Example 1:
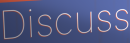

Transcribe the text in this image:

Discuss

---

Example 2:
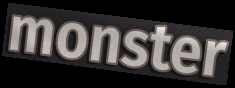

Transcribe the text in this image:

monster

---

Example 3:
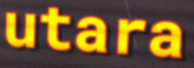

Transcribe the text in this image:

utara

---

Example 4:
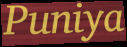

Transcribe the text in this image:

Puniya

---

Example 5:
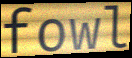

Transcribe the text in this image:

fowl